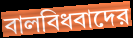
বালবিধবাদের